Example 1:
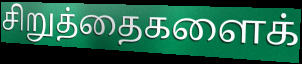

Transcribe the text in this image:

சிறுத்தைகளைக்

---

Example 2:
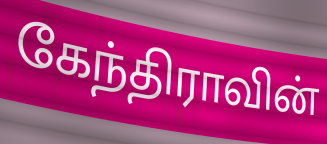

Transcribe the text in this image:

கேந்திராவின்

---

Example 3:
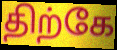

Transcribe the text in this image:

திற்கே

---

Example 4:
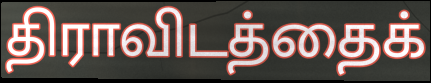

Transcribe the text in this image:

திராவிடத்தைக்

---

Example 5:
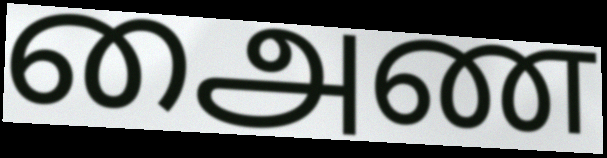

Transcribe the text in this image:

அைண